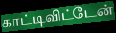
காட்டிவிட்டேன்